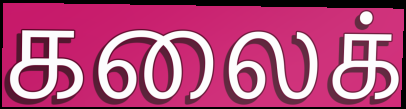
கலைக்